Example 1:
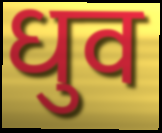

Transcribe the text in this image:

धुव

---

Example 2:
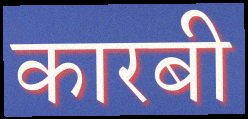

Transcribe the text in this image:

कारबी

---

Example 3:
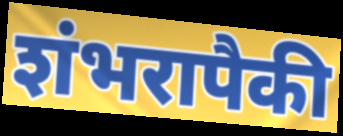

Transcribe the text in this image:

शंभरापैकी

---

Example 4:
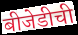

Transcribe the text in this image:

बीजेडीची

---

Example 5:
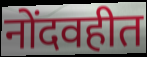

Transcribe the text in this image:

नोंदवहीत